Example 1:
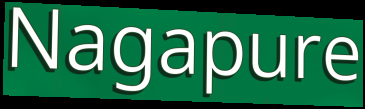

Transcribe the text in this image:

Nagapure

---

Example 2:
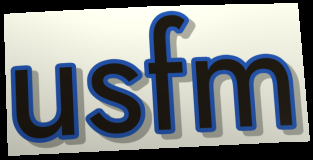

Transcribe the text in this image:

usfm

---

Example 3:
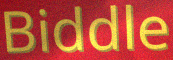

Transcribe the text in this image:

Biddle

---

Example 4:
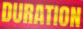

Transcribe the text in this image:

DURATION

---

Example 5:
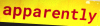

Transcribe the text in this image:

apparently